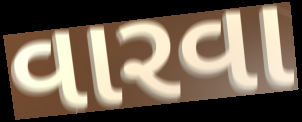
વારવા